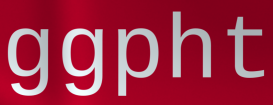
ggpht